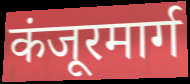
कंजूरमार्ग